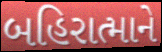
બહિરાત્માને